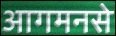
आगमनसे